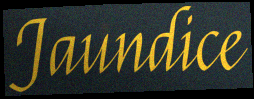
Jaundice